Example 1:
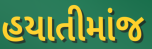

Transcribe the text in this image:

હયાતીમાંજ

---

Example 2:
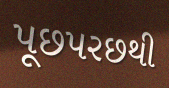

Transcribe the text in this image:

પૂછપરછથી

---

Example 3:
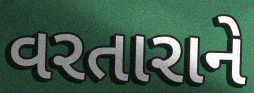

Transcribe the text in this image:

વરતારાને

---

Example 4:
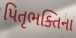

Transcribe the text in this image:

પિતૃભક્તિના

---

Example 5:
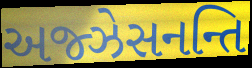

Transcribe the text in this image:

અજ્ઝેસનન્તિ